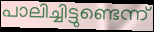
പാലിച്ചിട്ടുണ്ടെന്ന്